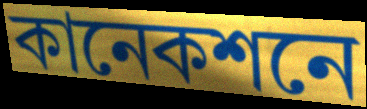
কানেকশনে